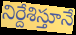
నిర్దేశిస్తూనే